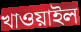
খাওয়াইল